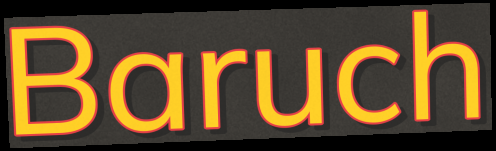
Baruch